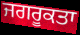
ਜਗਰੂਕਤਾ